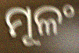
ମୂଳଂ